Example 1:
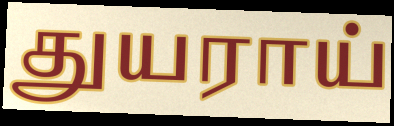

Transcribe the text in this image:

துயராய்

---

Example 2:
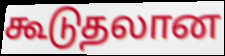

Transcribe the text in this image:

கூடுதலான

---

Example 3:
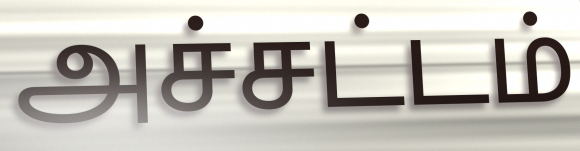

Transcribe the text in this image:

அச்சட்டம்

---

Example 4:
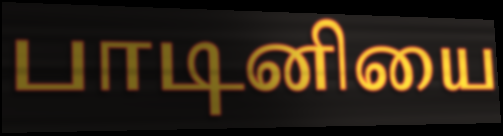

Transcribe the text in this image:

பாடினியை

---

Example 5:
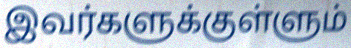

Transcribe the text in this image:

இவர்களுக்குள்ளும்